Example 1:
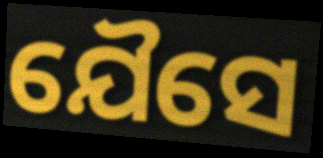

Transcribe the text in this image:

ଯୈସେ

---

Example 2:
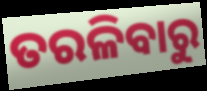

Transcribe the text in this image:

ତରଳିବାରୁ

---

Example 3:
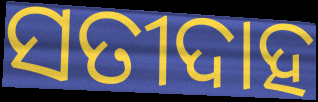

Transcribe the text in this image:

ସତୀଦାହ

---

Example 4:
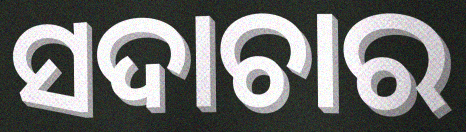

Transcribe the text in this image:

ସଦାଚାର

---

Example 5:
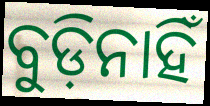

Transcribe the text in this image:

ବୁଡ଼ିନାହିଁ